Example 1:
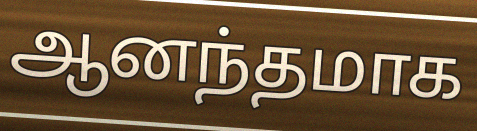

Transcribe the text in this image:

ஆனந்தமாக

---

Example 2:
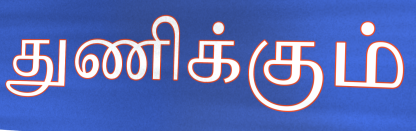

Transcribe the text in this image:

துணிக்கும்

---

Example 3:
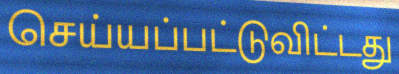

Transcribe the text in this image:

செய்யப்பட்டுவிட்டது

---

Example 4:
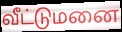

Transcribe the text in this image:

வீட்டுமனை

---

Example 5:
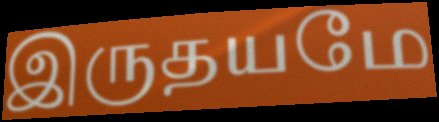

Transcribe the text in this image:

இருதயமே